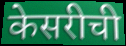
केसरीची